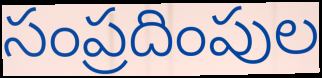
సంప్రదింపుల